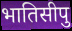
भातिसीपु